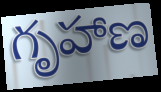
గృహాణ